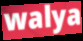
walya